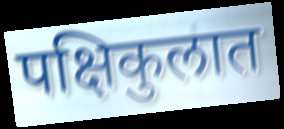
पक्षिकुलात